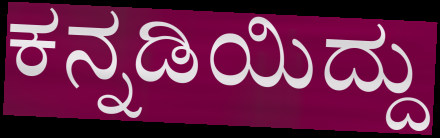
ಕನ್ನಡಿಯಿದ್ದು